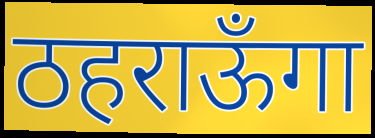
ठहराऊँगा